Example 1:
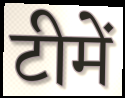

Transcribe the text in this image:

टीमें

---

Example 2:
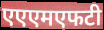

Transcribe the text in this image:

एएएमएफटी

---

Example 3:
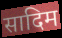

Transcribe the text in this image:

सादिम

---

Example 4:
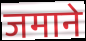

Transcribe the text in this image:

जमाने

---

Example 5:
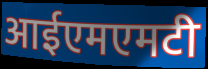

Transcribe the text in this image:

आईएमएमटी